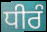
ਧੀਰੰ